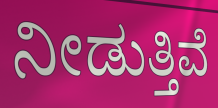
ನೀಡುತ್ತಿವೆ